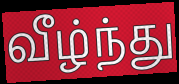
வீழ்ந்து